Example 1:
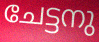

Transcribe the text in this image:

ചേട്ടനു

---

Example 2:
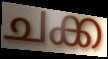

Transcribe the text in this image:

ചക്ക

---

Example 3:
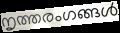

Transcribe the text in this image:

നൃത്തരംഗങ്ങൾ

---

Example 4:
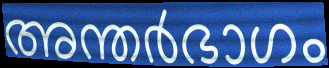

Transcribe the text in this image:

അന്തർഭാഗം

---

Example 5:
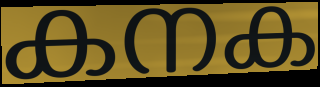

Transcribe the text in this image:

കനക